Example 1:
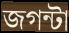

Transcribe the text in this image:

জগন্টা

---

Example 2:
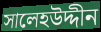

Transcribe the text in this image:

সালেহউদ্দীন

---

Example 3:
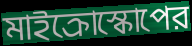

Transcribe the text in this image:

মাইক্রোস্কোপের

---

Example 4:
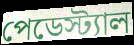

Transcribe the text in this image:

পেডেস্ট্যাল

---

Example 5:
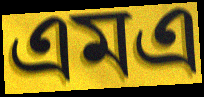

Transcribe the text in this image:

এমএ